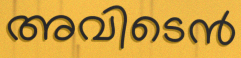
അവിടെൻ